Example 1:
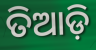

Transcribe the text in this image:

ତିଆଡ଼ି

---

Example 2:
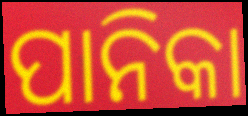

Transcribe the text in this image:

ପାନିକା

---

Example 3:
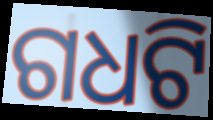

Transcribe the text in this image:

ଗଧଟି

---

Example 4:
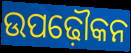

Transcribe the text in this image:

ଉପଢ଼ୌକନ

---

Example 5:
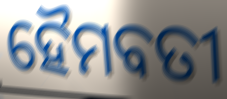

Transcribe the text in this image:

ହୈମବତୀ